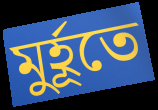
মুর্হূতে